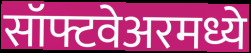
सॉफ्टवेअरमध्ये